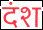
दंश